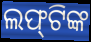
ଲଫ୍‌ଟିଙ୍କ